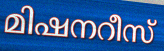
മിഷനറീസ്